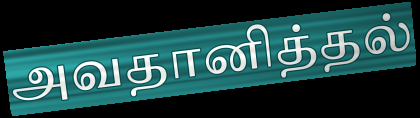
அவதானித்தல்